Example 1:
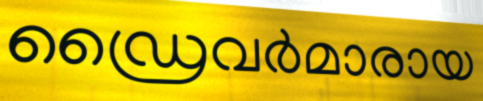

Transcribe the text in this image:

ഡ്രൈവർമാരായ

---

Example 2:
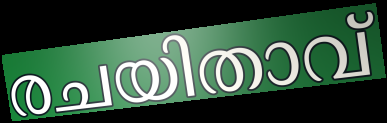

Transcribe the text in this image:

രചയിതാവ്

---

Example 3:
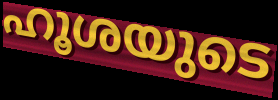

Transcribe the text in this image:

ഹൂശയുടെ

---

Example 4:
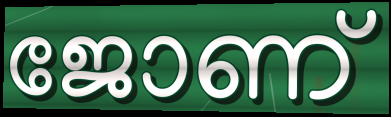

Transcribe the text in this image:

ജോണ്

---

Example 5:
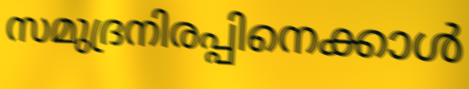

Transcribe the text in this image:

സമുദ്രനിരപ്പിനെക്കാൾ